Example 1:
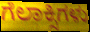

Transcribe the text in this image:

ಗೆಲಾಕ್ಸಿಗಳು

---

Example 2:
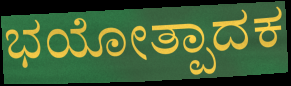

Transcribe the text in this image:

ಭಯೋತ್ಪಾದಕ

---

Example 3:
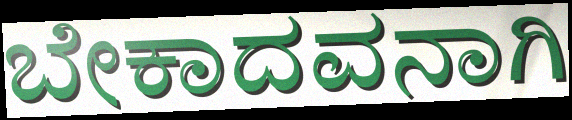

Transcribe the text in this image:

ಬೇಕಾದವನಾಗಿ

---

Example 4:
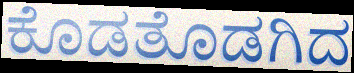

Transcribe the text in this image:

ಕೊಡತೊಡಗಿದ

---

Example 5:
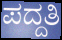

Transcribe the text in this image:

ಪದ್ದತಿ